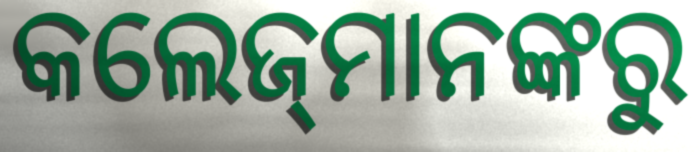
କଲେଜ୍‌ମାନଙ୍କରୁ